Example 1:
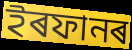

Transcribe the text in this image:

ইৰফানৰ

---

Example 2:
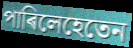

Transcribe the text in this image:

পাৰিলেহেতেন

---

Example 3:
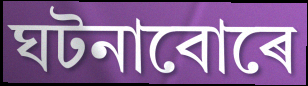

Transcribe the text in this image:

ঘটনাবোৰে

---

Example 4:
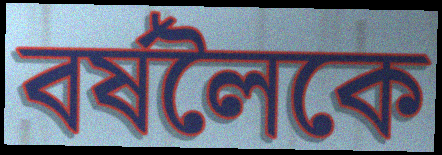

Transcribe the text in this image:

বৰ্ষলৈকে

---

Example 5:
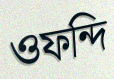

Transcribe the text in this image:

ওফন্দি